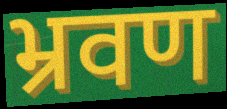
भ्रवण